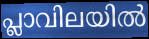
പ്ലാവിലയിൽ